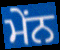
ਮੇਂਨ